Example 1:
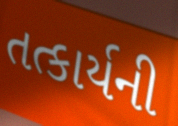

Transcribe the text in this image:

તત્કાર્યની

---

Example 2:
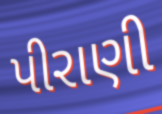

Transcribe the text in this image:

પીરાણી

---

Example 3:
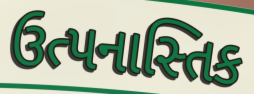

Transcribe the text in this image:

ઉત્પનાસ્તિક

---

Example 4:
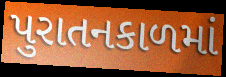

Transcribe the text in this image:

પુરાતનકાળમાં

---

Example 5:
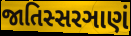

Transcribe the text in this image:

જાતિસ્સરઞાણં